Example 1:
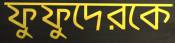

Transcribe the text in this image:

ফুফুদেরকে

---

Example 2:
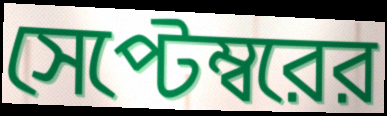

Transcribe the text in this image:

সেপ্টেম্বরের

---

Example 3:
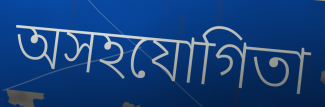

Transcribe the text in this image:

অসহযোগিতা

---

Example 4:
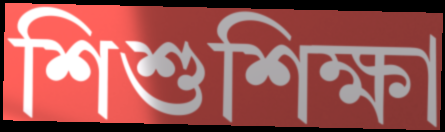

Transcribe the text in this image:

শিশুশিক্ষা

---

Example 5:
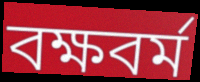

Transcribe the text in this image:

বক্ষবর্ম